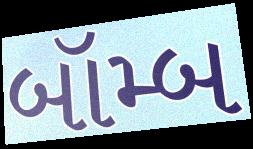
બૉમ્બ